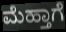
ಮೆಹ್ತಾಗೆ